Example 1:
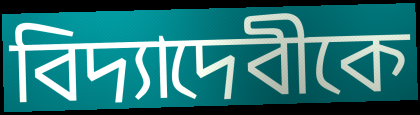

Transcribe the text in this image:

বিদ্যাদেবীকে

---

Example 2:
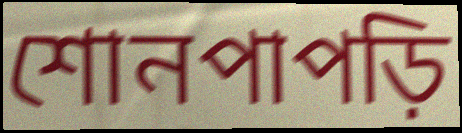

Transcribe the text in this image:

শোনপাপড়ি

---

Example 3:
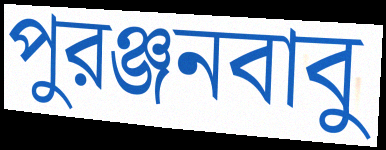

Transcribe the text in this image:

পুরঞ্জনবাবু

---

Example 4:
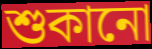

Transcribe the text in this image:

শুকানো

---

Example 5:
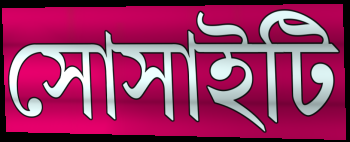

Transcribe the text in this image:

সোসাইটি